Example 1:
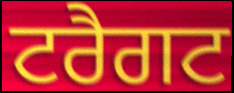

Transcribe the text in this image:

ਟਰੈਗਟ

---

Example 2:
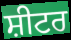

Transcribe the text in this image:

ਸ਼ੀਟਰ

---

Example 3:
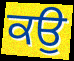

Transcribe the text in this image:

ਕਉ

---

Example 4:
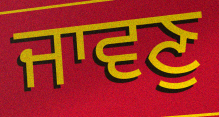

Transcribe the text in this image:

ਜਾਵਣੁ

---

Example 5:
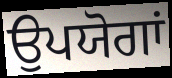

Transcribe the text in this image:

ਉਪਯੋਗਾਂ